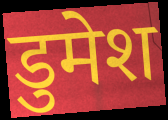
डुमेश